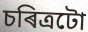
চৰিত্ৰটো